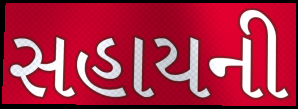
સહાયની